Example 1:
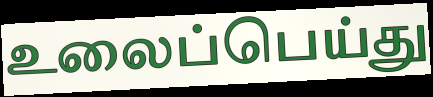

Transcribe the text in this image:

உலைப்பெய்து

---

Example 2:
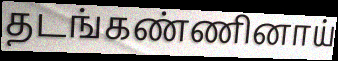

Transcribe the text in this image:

தடங்கண்ணினாய்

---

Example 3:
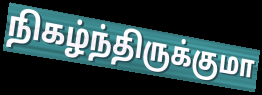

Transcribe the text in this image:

நிகழ்ந்திருக்குமா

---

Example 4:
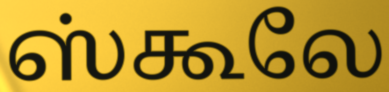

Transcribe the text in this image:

ஸ்கூலே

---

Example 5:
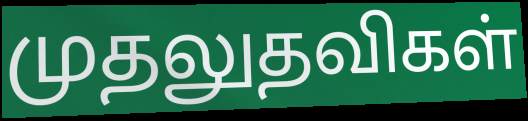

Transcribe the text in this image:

முதலுதவிகள்